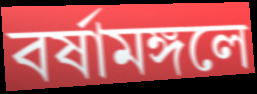
বর্ষামঙ্গলে